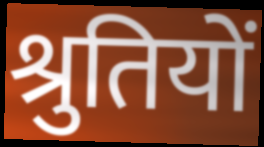
श्रुतियों